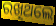
ରଖିଥଲେ